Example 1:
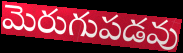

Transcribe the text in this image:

మెరుగుపడవు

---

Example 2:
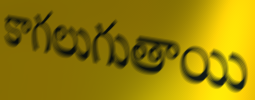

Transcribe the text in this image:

కాగలుగుతాయి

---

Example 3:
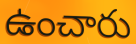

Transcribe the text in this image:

ఉంచారు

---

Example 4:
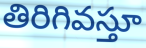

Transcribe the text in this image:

తిరిగివస్తూ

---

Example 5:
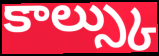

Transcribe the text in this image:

కాల్స్కు